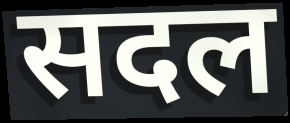
सदल